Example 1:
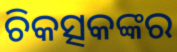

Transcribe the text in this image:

ଚିକତ୍ସକଙ୍କର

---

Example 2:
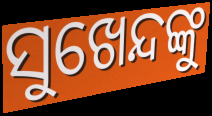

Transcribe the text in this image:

ସୁଖେନ୍ଦଙ୍କୁ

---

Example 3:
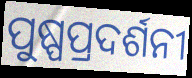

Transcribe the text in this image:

ପୁଷ୍ପପ୍ରଦର୍ଶନୀ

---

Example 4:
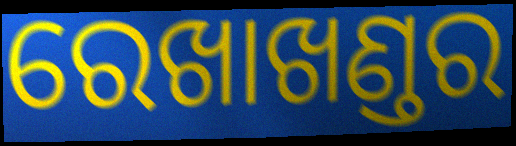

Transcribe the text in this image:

ରେଖାଖଣ୍ଡର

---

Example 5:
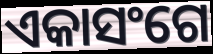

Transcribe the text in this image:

ଏକାସଂଗେ